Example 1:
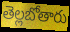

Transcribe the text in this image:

తెల్లబోతారు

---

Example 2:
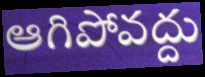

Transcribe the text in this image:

ఆగిపోవద్దు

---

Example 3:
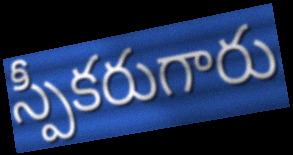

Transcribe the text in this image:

స్పీకరుగారు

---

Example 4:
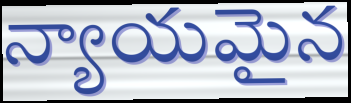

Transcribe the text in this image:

న్యాయమైన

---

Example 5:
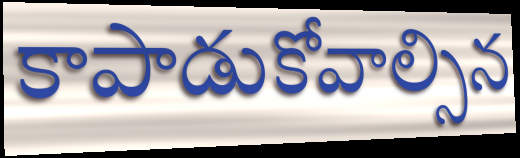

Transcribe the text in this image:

కాపాడుకోవాల్సిన